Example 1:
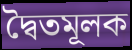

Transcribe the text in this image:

দ্বৈতমূলক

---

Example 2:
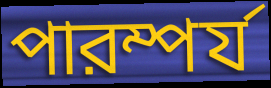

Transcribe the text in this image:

পারম্পর্য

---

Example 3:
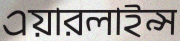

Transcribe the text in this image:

এয়ারলাইন্স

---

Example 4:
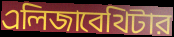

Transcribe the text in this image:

এলিজাবেথিটার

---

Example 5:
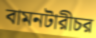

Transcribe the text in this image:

বামনটারীচর